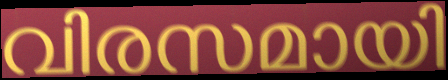
വിരസമായി